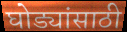
घोड्यांसाठी